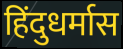
हिंदुधर्मास